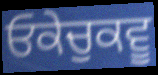
ਓਕੇਚੁਕਵੂ